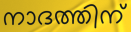
നാദത്തിന്